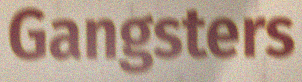
Gangsters